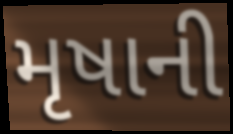
મૃષાની